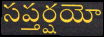
సప్తర్షయో